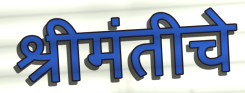
श्रीमंतीचे